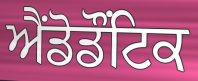
ਐਂਡੋਡੌਂਟਿਕ